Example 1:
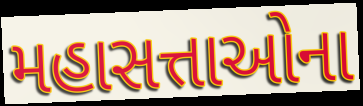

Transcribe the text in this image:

મહાસત્તાઓના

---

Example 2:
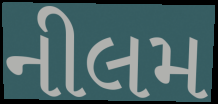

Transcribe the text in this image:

નીલમ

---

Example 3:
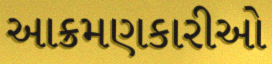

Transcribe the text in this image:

આક્રમણકારીઓ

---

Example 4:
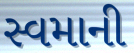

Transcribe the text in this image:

સ્વમાની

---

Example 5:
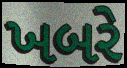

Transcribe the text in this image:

ખબરે